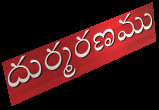
దుర్మరణము